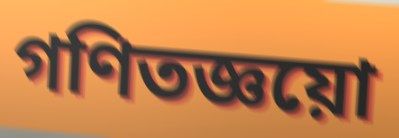
গণিতজ্ঞয়ো